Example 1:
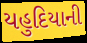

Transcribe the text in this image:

યહુદિયાની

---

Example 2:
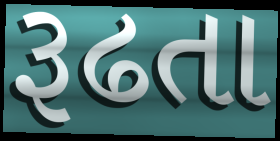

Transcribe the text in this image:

રૂઢતા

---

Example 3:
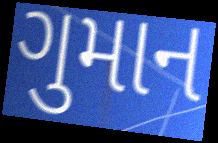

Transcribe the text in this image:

ગુમાન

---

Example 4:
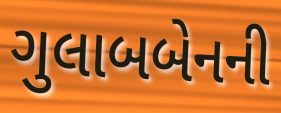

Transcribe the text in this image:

ગુલાબબેનની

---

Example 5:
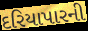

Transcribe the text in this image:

દરિયાપારની